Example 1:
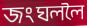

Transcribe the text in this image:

জংঘললৈ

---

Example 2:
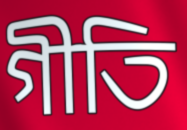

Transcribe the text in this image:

গীতি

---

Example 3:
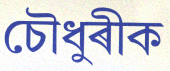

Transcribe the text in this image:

চৌধুৰীক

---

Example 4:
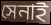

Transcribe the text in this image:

সেনাই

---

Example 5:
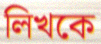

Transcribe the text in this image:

লিখকে